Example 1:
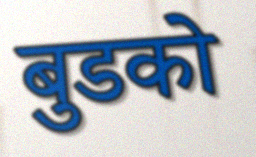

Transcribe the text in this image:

बुडको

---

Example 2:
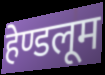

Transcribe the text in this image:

हेण्डलूम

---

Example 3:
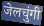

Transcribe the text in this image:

जेलचुंगी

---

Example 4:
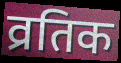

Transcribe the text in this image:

व्रतिक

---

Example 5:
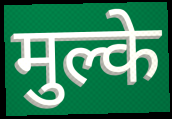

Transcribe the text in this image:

मुल्के